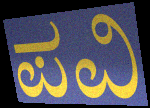
ಪವಿ